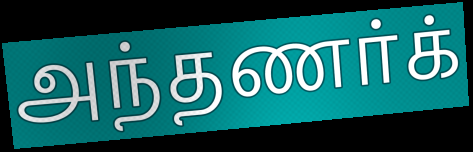
அந்தணர்க்